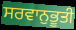
ਸਰਵਾਨੁਭੂਤੀ